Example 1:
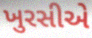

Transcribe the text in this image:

ખુરસીએ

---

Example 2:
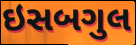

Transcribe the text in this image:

ઇસબગુલ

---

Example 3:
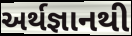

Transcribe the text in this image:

અર્થજ્ઞાનથી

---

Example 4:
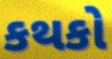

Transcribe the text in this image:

કથકો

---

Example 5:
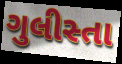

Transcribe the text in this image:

ગુલીસ્તા